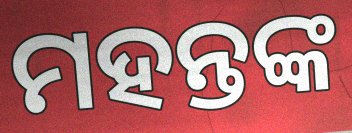
ମହନ୍ତଙ୍କ